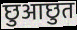
छुआछुत